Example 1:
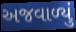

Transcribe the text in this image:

અજવાળ્યું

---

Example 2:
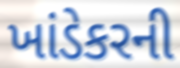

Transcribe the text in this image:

ખાંડેકરની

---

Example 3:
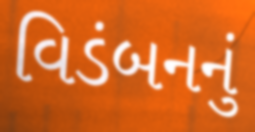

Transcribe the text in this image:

વિડંબનનું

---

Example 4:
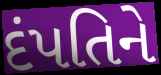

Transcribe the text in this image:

દંપતિને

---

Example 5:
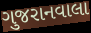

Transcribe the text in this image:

ગુજરાનવાલા